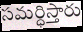
సమర్ధిస్తారు